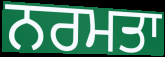
ਨਰਮਤਾ